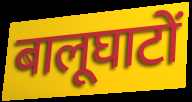
बालूघाटों